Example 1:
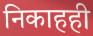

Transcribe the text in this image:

निकाहही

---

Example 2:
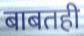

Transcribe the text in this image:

बाबतही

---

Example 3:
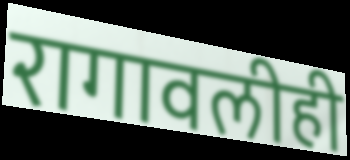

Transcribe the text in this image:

रागावलीही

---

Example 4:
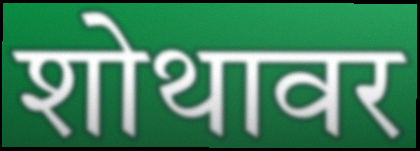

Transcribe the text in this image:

शोथावर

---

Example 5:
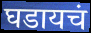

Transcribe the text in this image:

घडायचं